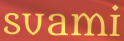
suami